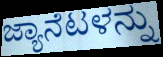
ಜ್ಯಾನೆಟಳನ್ನು